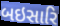
બઇસારિ